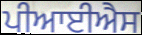
ਪੀਆਈਐਸ